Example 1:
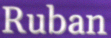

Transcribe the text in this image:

Ruban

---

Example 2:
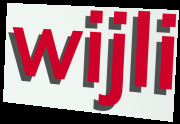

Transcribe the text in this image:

wijli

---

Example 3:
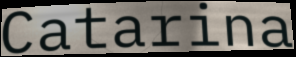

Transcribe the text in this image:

Catarina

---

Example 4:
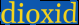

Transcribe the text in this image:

dioxid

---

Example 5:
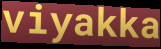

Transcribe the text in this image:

viyakka